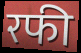
रफी